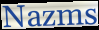
Nazms